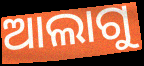
ଆଲାଗୁ